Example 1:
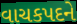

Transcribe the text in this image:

વાચકપદને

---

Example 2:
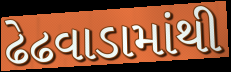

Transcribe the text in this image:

ઢેઢવાડામાંથી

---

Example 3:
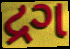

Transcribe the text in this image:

દ્રગ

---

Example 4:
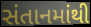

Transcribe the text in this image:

સંતાનમાંથી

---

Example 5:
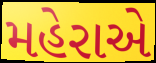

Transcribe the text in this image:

મહેરાએ